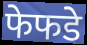
फेफडे